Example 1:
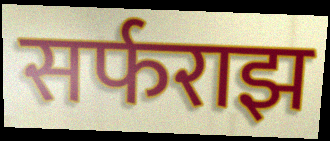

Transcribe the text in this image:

सर्फराझ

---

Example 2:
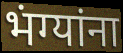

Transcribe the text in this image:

भंग्यांना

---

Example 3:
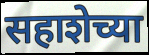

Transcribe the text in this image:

सहाशेच्या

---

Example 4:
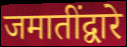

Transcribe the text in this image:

जमातींद्वारे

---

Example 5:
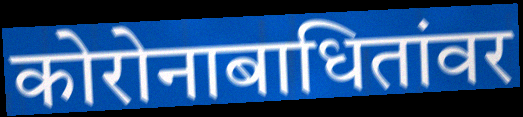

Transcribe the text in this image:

कोरोनाबाधितांवर